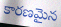
కారణమైన